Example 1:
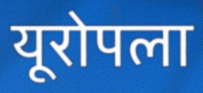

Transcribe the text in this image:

यूरोपला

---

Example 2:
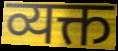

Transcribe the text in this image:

व्यक्त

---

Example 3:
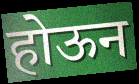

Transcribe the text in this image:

होऊन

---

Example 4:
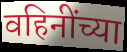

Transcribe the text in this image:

वहिनींच्या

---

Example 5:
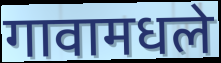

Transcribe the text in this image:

गावामधले